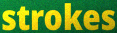
strokes